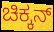
ಚಿಕ್ಕನ್